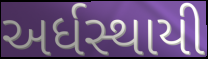
અર્ધસ્થાયી